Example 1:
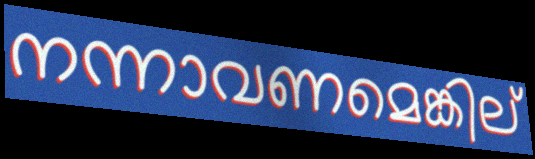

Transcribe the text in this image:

നന്നാവണമെങ്കില്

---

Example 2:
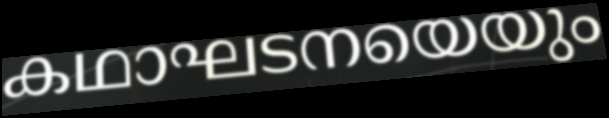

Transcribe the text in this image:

കഥാഘടനയെയും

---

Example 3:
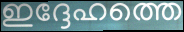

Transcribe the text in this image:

ഇദ്ദേഹത്തെ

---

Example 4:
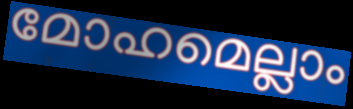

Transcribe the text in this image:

മോഹമെല്ലാം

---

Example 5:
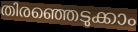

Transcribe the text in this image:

തിരഞ്ഞെടുക്കാം